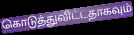
கொடுத்துவிட்டதாகவும்